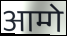
आम्गे